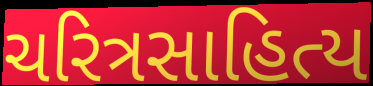
ચરિત્રસાહિત્ય